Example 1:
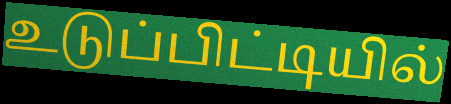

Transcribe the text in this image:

உடுப்பிட்டியில்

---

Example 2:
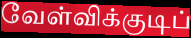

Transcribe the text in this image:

வேள்விக்குடிப்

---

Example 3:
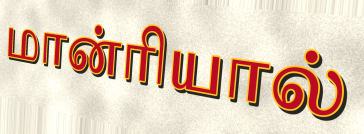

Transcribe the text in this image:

மான்ரியால்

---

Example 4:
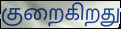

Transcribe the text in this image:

குறைகிறது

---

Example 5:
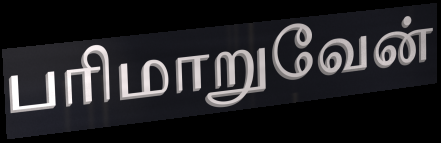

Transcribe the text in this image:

பரிமாறுவேன்